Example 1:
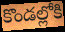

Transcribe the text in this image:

కొండల్లోకి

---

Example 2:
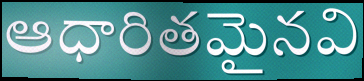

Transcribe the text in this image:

ఆధారితమైనవి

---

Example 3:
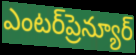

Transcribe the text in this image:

ఎంటర్‌ప్రెన్యూర్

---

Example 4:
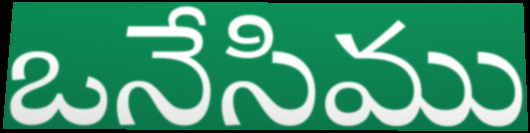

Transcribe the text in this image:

ఒనేసిము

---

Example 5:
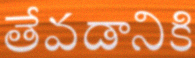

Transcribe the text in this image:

తేవడానికి